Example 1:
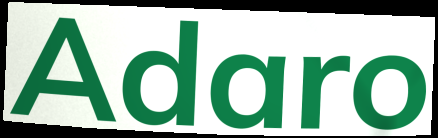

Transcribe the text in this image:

Adaro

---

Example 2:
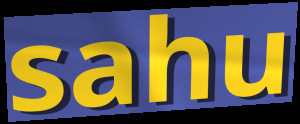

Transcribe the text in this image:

sahu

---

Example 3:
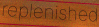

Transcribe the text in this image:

replenished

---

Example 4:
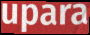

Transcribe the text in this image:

upara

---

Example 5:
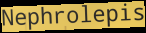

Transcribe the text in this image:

Nephrolepis